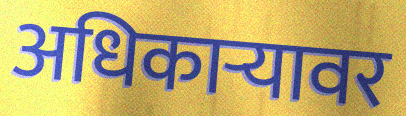
अधिकाऱ्यावर